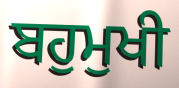
ਬਹੁਮੁਖੀ